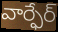
వార్ఫేర్